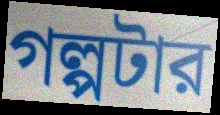
গল্পটার